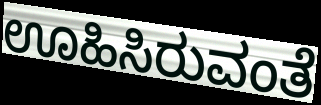
ಊಹಿಸಿರುವಂತೆ